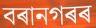
বৰানগৰৰ